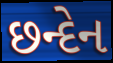
છન્દેન